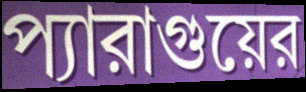
প্যারাগুয়ের